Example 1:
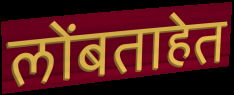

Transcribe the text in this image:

लोंबताहेत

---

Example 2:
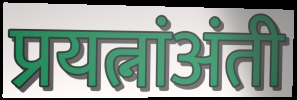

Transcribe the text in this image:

प्रयत्नांअंती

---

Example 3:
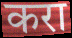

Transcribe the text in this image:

करा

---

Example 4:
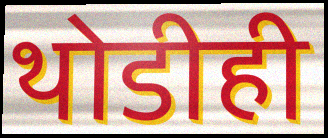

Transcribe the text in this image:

थोडीही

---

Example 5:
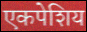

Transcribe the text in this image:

एकपेशिय